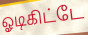
ஓடிகிட்டே